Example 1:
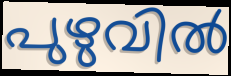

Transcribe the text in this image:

പുഴുവിൽ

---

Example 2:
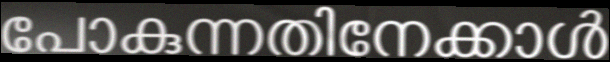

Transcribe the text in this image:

പോകുന്നതിനേക്കാൾ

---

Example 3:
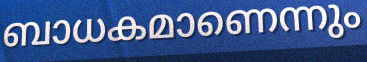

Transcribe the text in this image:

ബാധകമാണെന്നും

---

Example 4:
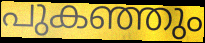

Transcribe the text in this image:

പുകഞ്ഞും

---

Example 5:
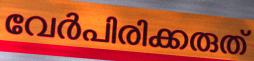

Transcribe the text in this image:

വേർപിരിക്കരുത്